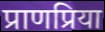
प्राणप्रिया